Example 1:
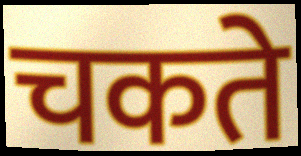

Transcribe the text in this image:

चकते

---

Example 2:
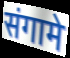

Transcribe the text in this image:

संगामे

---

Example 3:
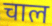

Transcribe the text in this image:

चाल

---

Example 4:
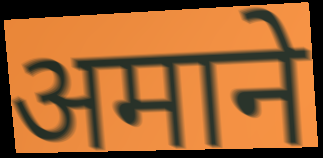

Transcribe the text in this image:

अमाने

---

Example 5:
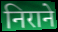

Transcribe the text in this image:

निराने